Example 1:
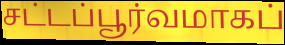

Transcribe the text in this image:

சட்டப்பூர்வமாகப்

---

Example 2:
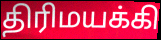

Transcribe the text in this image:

திரிமயக்கி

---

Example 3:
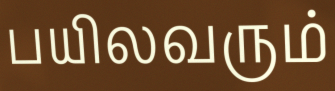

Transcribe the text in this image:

பயிலவரும்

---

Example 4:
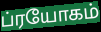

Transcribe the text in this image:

ப்ரயோகம்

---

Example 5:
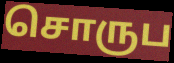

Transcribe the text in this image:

சொருப